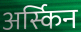
अर्स्किन